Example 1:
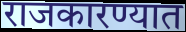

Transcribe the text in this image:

राजकारण्यात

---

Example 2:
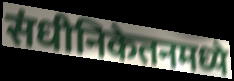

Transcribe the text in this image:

संधीनिकेतनमध्ये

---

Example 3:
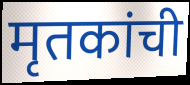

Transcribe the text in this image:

मृतकांची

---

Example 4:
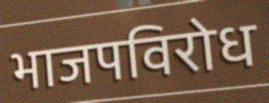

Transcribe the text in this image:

भाजपविरोध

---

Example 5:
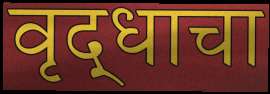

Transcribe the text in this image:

वृद्धाचा